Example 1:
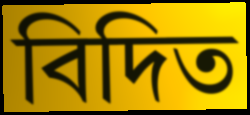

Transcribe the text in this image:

বিদিত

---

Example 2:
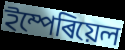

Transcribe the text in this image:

ইম্পেৰিয়েল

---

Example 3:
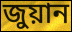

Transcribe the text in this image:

জুয়ান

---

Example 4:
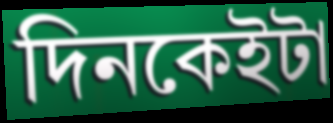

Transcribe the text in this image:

দিনকেইটা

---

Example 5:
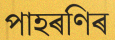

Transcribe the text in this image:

পাহৰণিৰ